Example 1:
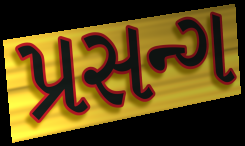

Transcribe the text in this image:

પ્રસન્ગ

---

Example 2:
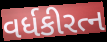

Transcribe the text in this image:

વર્ધકીરત્ન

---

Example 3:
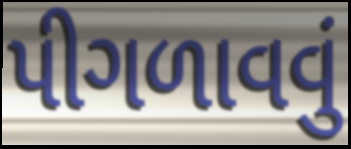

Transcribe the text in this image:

પીગળાવવું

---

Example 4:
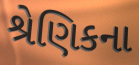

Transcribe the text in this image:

શ્રેણિકના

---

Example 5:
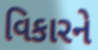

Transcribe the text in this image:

વિકારને